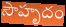
సౌహృదం